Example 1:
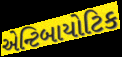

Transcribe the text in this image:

એન્ટિબાયોટિક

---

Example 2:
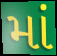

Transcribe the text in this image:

માં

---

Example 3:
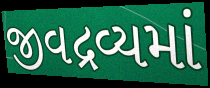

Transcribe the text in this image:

જીવદ્રવ્યમાં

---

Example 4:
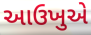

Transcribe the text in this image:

આઉખુએ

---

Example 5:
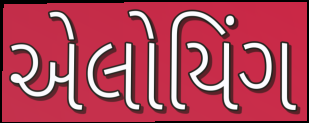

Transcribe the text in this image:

એલોયિંગ